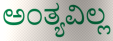
ಅಂತ್ಯವಿಲ್ಲ